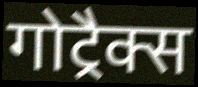
गोट्रैक्स